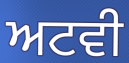
ਅਟਵੀ